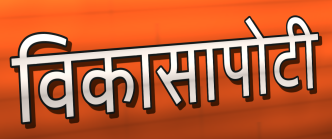
विकासापोटी